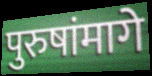
पुरुषांमागे